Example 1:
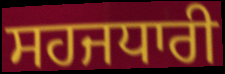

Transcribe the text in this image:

ਸਹਜਧਾਰੀ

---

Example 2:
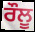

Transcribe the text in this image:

ਰੌਲੂ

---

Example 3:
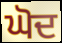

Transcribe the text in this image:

ਘੋਦ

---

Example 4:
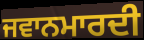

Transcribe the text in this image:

ਜਵਾਨਮਾਰਦੀ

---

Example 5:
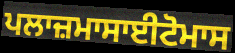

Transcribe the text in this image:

ਪਲਾਜ਼ਮਾਸਾਈਟੋਮਾਸ